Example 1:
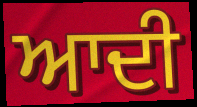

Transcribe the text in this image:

ਆਦੀ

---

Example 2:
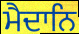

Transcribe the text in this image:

ਮੈਦਾਨਿ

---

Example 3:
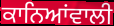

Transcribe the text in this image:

ਕਾਨਿਆਂਵਾਲੀ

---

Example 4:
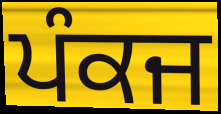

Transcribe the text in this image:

ਪੰਕਜ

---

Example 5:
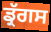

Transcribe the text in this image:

ਡ੍ਰੱਗਸ